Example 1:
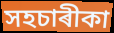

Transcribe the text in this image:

সহচাৰীকা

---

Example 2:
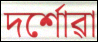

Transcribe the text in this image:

দৰ্শোৱা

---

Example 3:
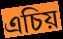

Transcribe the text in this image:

এচিয়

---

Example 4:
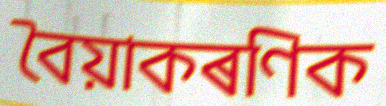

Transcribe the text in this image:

বৈয়াকৰণিক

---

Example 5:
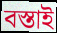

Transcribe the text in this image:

বস্তাই